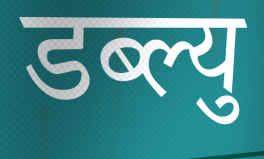
डब्ल्यु